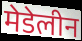
मेडेलीन